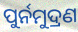
ପୁର୍ନମୁଦ୍ରଣ